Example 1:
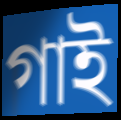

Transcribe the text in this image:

গাই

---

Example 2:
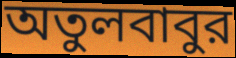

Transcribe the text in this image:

অতুলবাবুর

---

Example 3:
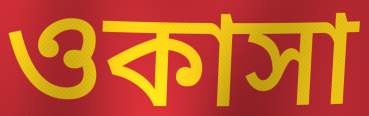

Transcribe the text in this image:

ওকাসা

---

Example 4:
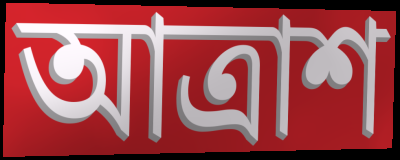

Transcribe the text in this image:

আত্রাশ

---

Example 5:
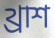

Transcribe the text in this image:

থ্রাশ